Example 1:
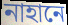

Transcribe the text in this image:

নাহানে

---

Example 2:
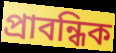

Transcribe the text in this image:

প্রাবন্ধিক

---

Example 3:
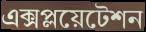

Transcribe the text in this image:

এক্সপ্লয়েটেশন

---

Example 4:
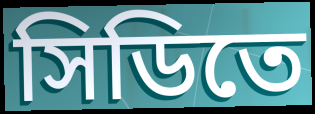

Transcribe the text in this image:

সিডিতে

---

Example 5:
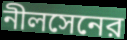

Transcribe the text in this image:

নীলসেনের